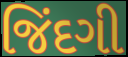
જિંદગી